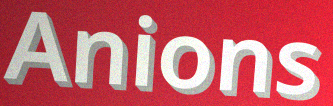
Anions